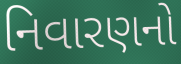
નિવારણનો